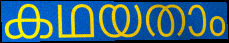
കഥയതാം